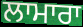
ਲਾਮਾਰਾ